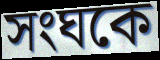
সংঘকে